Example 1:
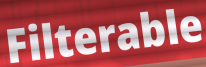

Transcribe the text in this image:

Filterable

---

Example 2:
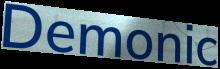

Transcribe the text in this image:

Demonic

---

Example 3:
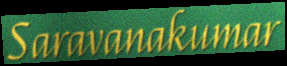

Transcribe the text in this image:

Saravanakumar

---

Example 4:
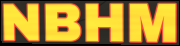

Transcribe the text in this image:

NBHM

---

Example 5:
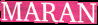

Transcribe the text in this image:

MARAN